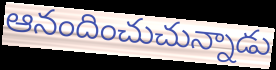
ఆనందించుచున్నాడు